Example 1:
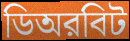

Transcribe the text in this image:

ডিঅরবিট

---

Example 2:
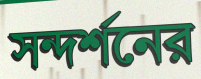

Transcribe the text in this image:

সন্দর্শনের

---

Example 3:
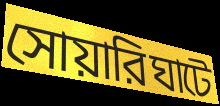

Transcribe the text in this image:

সোয়ারিঘাটে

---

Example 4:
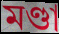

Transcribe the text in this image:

মণ্ডা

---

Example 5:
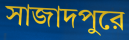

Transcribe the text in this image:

সাজাদপুরে